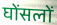
घोंसलों